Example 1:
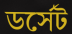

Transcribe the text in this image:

ডর্সেট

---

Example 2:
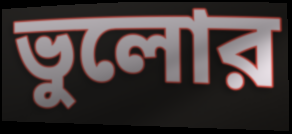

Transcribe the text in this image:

ভুলোর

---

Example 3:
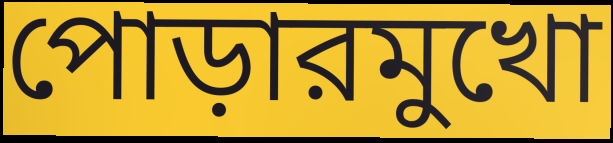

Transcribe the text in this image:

পোড়ারমুখো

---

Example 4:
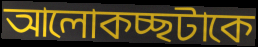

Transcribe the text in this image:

আলোকচ্ছটাকে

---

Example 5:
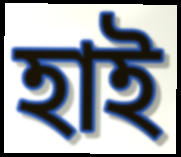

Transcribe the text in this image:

হাই